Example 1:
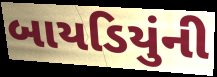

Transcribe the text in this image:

બાયડિયુંની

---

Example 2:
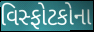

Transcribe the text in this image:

વિસ્ફોટકોના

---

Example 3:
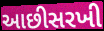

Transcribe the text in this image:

આછીસરખી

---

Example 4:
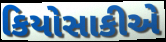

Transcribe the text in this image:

કિયોસાકીએ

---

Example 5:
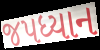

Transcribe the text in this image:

જપધ્યાન